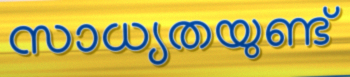
സാധ്യതയുണ്ട്